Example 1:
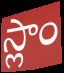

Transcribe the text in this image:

స్లాం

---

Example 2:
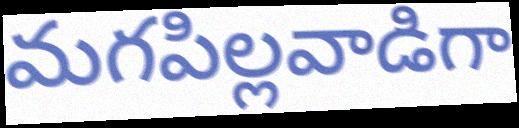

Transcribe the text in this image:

మగపిల్లవాడిగా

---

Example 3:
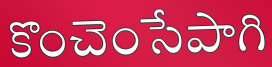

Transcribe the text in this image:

కొంచెంసేపాగి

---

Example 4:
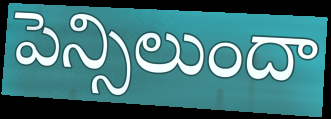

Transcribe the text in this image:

పెన్సిలుందా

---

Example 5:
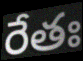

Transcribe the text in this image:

రేతః